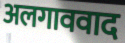
अलगाववाद